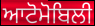
ਆਟੋਮੋਬਿਲੀ